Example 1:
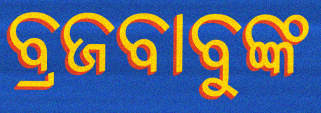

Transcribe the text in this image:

ବ୍ରଜବାବୁଙ୍କ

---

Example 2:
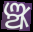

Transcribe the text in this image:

ଞ୍ଝ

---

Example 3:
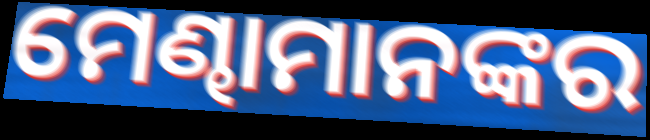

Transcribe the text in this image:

ମେଣ୍ଢାମାନଙ୍କର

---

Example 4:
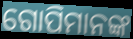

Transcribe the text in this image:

ଗୋପିମାନଙ୍କ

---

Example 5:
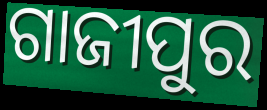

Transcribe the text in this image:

ଗାଜୀପୁର